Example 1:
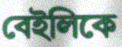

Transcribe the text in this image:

বেইলিকে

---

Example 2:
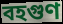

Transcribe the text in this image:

বহগুণ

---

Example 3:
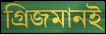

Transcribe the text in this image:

গ্রিজমানই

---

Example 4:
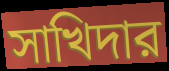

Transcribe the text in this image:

সাখিদার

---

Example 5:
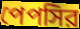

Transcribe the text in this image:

পেপসির